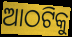
ଆଠଟିକୁ